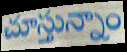
చూస్తున్నాం